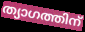
ത്യാഗത്തിന്